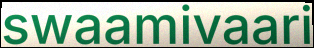
swaamivaari